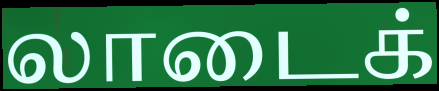
லாடைக்